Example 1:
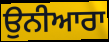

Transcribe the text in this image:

ਉਨੀਆਰਾ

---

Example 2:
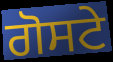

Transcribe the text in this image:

ਗੋਸਟੇ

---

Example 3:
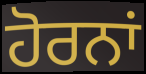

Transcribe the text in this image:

ਹੋਰਨਾਂ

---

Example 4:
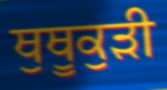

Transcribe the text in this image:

ਥੁਥੂਕੁੜੀ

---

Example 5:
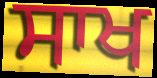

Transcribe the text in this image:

ਸਾਖ